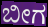
ಬೀಗ